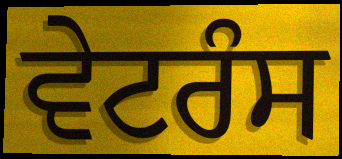
ਵੇਟਰੰਸ